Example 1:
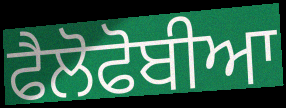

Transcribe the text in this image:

ਫੈਲੋਫੋਬੀਆ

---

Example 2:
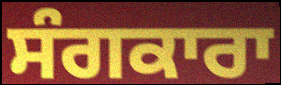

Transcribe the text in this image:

ਸੰਗਕਾਰਾ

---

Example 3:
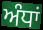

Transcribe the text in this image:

ਅੰਧਾਂ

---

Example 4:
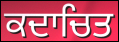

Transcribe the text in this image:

ਕਦਾਚਿਤ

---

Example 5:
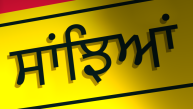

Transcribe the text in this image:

ਸਾਂਝਿਆਂ